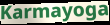
Karmayoga